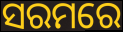
ସରମରେ